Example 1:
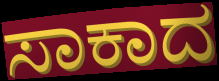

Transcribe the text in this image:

ಸಾಕಾದ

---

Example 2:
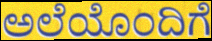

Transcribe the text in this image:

ಅಲೆಯೊಂದಿಗೆ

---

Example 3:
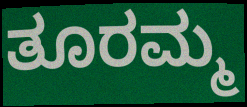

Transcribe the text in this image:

ತೂರಮ್ಮ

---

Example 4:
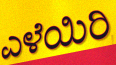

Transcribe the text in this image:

ಎಳೆಯಿರಿ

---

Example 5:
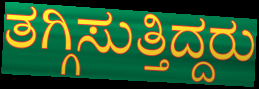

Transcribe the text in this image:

ತಗ್ಗಿಸುತ್ತಿದ್ದರು